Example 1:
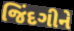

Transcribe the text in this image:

જિંદગીને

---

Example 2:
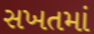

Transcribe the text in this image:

સખતમાં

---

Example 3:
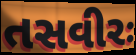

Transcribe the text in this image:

તસવીરઃ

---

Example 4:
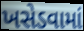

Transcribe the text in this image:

ખસેડવામાં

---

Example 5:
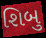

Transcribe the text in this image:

શિબુ